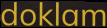
doklam